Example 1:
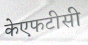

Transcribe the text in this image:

केएफटीसी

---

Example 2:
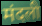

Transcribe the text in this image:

मंदली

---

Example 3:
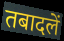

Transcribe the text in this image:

तबादलें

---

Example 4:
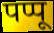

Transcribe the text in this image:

पप्‍पू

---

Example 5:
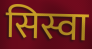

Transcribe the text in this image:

सिस्वा